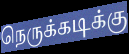
நெருக்கடிக்கு